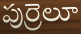
పుర్రెలూ